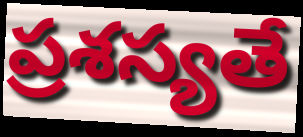
ప్రశస్యతే